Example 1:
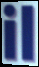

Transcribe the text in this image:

il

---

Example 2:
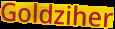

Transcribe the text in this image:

Goldziher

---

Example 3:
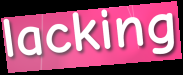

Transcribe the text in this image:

lacking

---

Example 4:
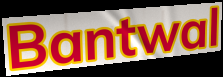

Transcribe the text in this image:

Bantwal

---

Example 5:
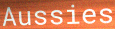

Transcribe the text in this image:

Aussies